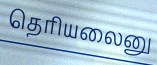
தெரியலைனு